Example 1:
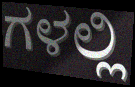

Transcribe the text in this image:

ಗಳಲ್ಲಿ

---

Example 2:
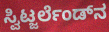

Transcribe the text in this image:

ಸ್ವಿಟ್ಜರ್ಲೆಂಡ್‌ನ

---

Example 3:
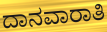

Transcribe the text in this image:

ದಾನವಾರಾತಿ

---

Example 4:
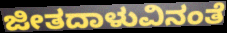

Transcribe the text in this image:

ಜೀತದಾಳುವಿನಂತೆ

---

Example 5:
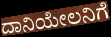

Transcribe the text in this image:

ದಾನಿಯೇಲನಿಗೆ